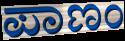
ಪಾಣಂ